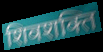
शिवशक्ति